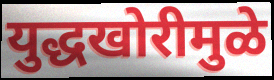
युद्धखोरीमुळे